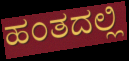
ಹಂತದಲ್ಲಿ